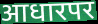
आधारपर